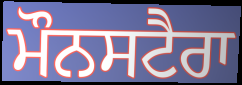
ਮੌਨਸਟੈਰਾ